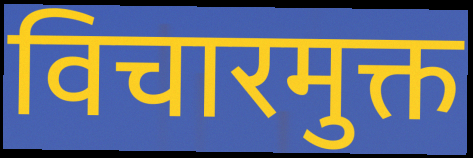
विचारमुक्त